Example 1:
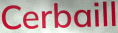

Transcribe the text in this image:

Cerbaill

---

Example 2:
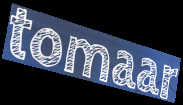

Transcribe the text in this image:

tomaar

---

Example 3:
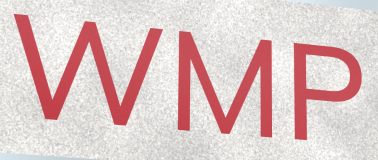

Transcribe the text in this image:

WMP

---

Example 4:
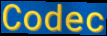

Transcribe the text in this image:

Codec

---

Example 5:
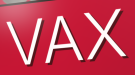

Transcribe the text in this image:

VAX